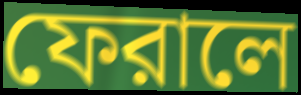
ফেরালে